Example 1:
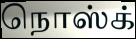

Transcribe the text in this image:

நொஸ்க்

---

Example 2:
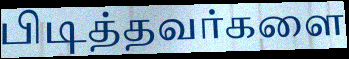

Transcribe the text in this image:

பிடித்தவர்களை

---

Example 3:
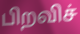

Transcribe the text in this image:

பிறவிச்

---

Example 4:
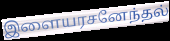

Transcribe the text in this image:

இளையரசனேந்தல்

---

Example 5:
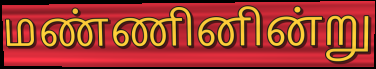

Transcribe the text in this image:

மண்ணினின்று